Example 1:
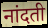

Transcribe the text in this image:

नांदती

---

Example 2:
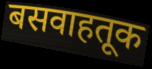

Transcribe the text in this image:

बसवाहतूक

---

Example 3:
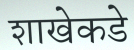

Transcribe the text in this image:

शाखेकडे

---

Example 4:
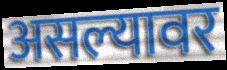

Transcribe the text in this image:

असल्यावर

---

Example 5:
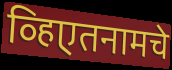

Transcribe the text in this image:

व्हिएतनामचे